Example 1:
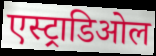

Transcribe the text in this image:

एस्ट्राडिओल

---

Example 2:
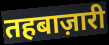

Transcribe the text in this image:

तहबाज़ारी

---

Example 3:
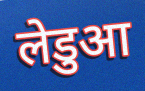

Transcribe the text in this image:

लेडुआ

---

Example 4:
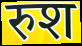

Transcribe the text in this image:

रुश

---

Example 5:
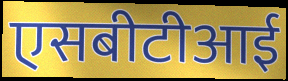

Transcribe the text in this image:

एसबीटीआई